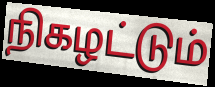
நிகழட்டும்